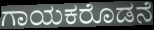
ಗಾಯಕರೊಡನೆ